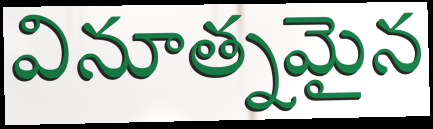
వినూత్నమైన